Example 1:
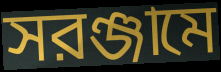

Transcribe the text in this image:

সরঞ্জামে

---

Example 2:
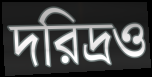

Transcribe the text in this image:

দরিদ্রও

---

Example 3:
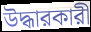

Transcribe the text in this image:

উদ্ধারকারী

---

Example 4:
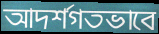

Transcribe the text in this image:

আদর্শগতভাবে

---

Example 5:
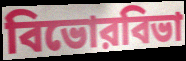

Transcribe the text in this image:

বিভোরবিভা